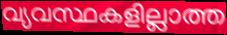
വ്യവസ്ഥകളില്ലാത്ത